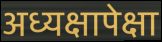
अध्यक्षापेक्षा